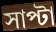
সাপ্টা